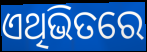
ଏଥିଭିତରେ